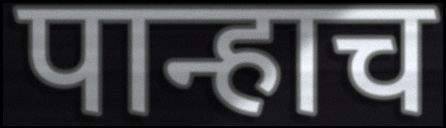
पान्हाच